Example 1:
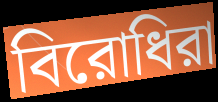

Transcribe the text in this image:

বিরোধিরা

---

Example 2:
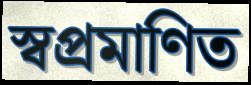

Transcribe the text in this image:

স্বপ্রমাণিত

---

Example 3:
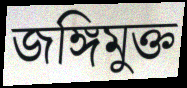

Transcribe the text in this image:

জঙ্গিমুক্ত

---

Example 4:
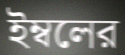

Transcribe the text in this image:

ইম্বলের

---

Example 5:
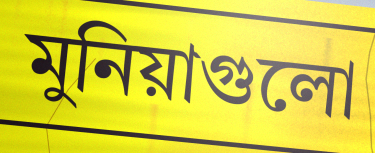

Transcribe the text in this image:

মুনিয়াগুলো